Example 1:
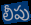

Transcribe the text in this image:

లీపు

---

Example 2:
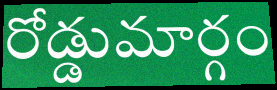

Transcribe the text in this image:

రోడ్డుమార్గం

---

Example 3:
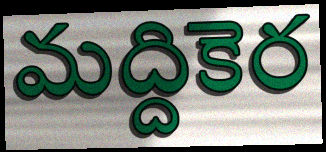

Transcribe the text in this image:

మద్దికెర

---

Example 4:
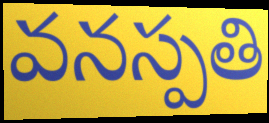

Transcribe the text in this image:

వనస్పతి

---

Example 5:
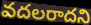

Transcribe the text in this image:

వదలరాదని